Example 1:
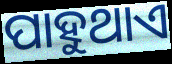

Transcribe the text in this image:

ପାହୁଥାଏ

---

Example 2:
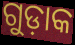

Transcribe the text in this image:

ଗୁଡ଼ାକ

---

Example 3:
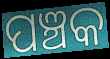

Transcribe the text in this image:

ପଞ୍ଚକ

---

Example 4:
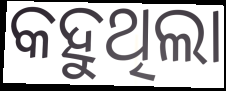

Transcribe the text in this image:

କହୁଥିଲା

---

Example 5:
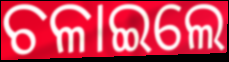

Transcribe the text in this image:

ଚଳାଇଲେ